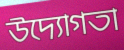
উদ্যোগতা